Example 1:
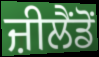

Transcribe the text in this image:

ਜ਼ੀਲੈਂਡੋਂ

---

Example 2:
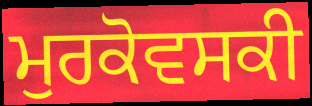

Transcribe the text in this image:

ਮੁਰਕੋਵਸਕੀ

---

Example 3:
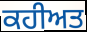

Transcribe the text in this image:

ਕਹੀਅਤ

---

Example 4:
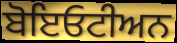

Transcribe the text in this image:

ਬੋਇਓਟੀਅਨ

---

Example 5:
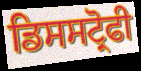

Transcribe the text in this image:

ਡਿਸਸਟ੍ਰੋਫੀ